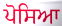
ਪੋਸਿਆ